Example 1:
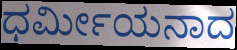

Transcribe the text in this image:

ಧರ್ಮೀಯನಾದ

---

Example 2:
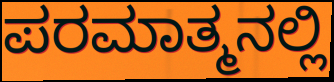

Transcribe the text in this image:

ಪರಮಾತ್ಮನಲ್ಲಿ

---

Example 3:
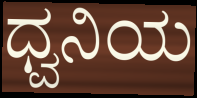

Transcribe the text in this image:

ಧ್ವನಿಯ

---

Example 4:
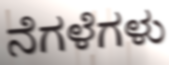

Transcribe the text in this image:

ನೆಗಳೆಗಳು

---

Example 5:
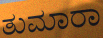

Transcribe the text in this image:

ತುಮಾರಾ